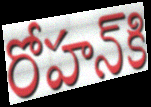
రోహన్‌కి